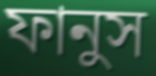
ফানুস